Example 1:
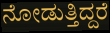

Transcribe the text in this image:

ನೋಡುತ್ತಿದ್ದರೆ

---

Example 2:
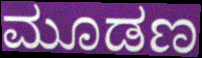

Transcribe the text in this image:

ಮೂಡಣ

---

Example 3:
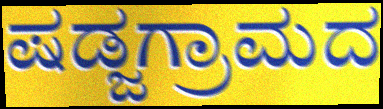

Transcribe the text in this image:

ಷಡ್ಜಗ್ರಾಮದ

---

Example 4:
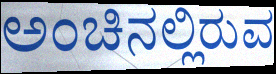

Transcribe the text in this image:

ಅಂಚಿನಲ್ಲಿರುವ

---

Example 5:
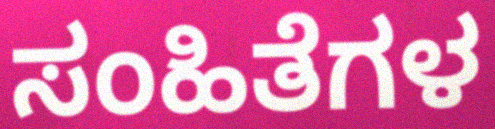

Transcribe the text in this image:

ಸಂಹಿತೆಗಳ